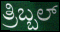
ತ್ರಿಬ್ಬಲ್